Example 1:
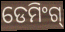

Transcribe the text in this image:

ଡେମିଂଗ୍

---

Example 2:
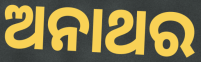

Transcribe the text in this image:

ଅନାଥର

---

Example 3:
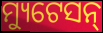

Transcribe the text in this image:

ମ୍ୟୁଟେସନ୍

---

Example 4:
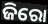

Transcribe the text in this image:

ଜିରୋ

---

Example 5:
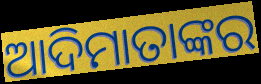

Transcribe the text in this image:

ଆଦିମାତାଙ୍କର